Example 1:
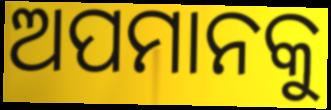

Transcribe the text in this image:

ଅପମାନକୁ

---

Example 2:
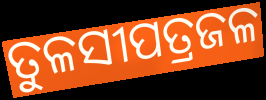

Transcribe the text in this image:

ତୁଳସୀପତ୍ରଜଳ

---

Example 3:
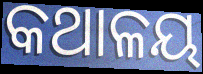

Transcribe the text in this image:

କଥାଳୟ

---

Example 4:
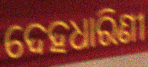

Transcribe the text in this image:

ଦେହଧାରିଣୀ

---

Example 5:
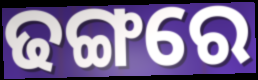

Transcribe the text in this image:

ଢଙ୍ଗରେ